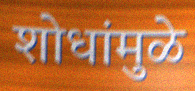
शोधांमुळे